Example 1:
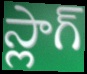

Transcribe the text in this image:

స్లాగ్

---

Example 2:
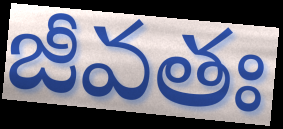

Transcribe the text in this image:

జీవతః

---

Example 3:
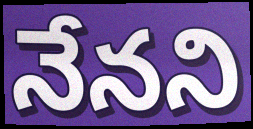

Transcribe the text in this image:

నేనని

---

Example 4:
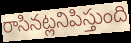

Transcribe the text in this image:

రాసినట్లనిపిస్తుంది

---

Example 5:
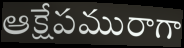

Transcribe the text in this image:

ఆక్షేపమురాగా